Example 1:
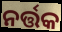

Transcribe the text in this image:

ନର୍ତ୍ତକ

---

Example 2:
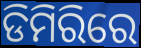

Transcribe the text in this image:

ଡିମିରିରେ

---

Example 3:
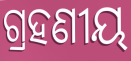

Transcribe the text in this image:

ଗ୍ରହଣୀୟ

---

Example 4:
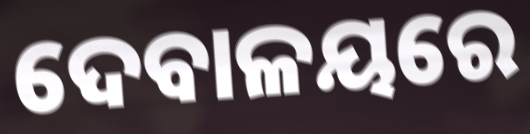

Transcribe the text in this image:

ଦେବାଳୟରେ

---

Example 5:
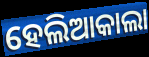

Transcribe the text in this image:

ହେଲିଆକାଲା